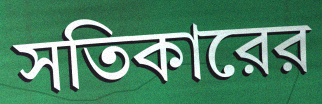
সতিকারের